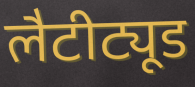
लैटीट्यूड